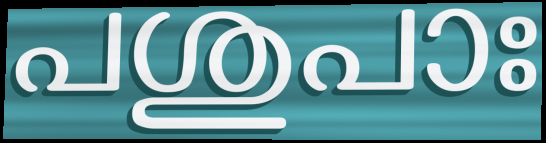
പശുപാഃ